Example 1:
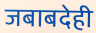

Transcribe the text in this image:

जबाबदेही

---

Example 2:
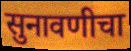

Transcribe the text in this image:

सुनावणीचा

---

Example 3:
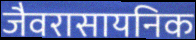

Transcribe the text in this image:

जैवरासायनिक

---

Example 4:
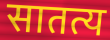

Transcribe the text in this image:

सातत्य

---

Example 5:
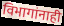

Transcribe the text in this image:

विभागांनाही